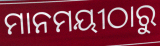
ମାନମୟୀଠାରୁ